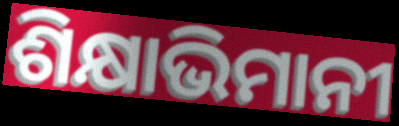
ଶିକ୍ଷାଭିମାନୀ